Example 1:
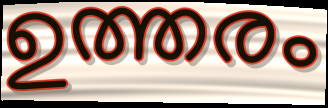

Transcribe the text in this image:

ഉത്തരം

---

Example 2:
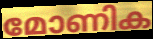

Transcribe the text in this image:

മോണിക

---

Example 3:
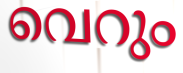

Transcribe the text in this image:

വെറും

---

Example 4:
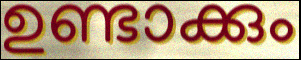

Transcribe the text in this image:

ഉണ്ടാക്കും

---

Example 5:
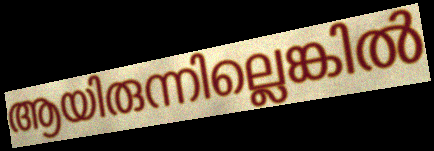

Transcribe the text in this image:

ആയിരുന്നില്ലെങ്കിൽ